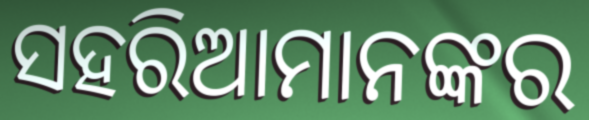
ସହରିଆମାନଙ୍କର